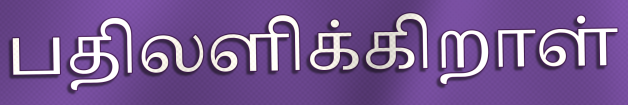
பதிலளிக்கிறாள்